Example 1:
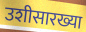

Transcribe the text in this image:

उशीसारख्या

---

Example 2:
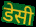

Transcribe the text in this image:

डेसी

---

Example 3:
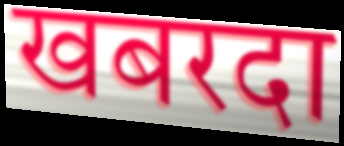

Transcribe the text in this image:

खबरदा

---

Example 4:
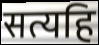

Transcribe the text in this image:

सत्यहि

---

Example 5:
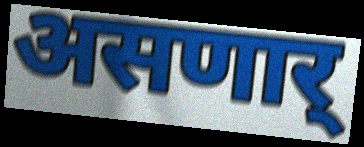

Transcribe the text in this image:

असणार्